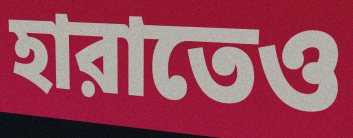
হারাতেও